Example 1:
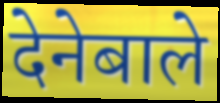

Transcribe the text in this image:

देनेबाले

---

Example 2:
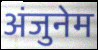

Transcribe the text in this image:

अंजुनेम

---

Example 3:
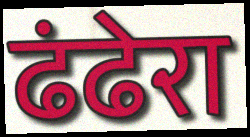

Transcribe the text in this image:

ढंढेरा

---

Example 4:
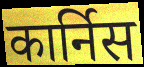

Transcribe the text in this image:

कार्निस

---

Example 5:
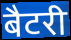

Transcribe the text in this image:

बैटरी